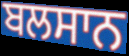
ਬਲਸਾਨ